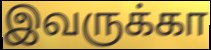
இவருக்கா